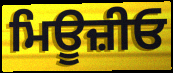
ਮਿਊਜ਼ੀਓ